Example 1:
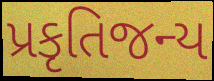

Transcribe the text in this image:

પ્રકૃતિજન્ય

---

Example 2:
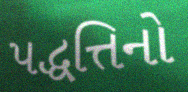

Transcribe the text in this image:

પદ્ધત્તિનો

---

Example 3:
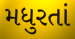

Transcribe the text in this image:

મધુરતાં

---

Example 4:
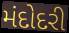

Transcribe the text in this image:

મંદોદરી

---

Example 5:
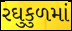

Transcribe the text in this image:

રઘુકુળમાં